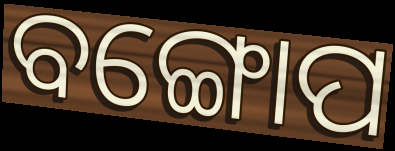
ବଙ୍ଗୋପ